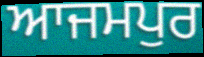
ਆਜਮਪੁਰ